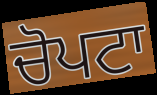
ਚੋਪਟਾ